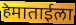
हेमाताईला